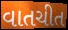
વાતચીત